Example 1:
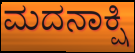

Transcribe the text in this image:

ಮದನಾಕ್ಷಿ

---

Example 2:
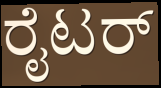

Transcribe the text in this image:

ರೈಟರ್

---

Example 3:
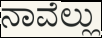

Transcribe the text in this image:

ನಾವೆಲ್ಲು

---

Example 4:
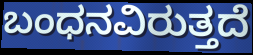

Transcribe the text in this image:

ಬಂಧನವಿರುತ್ತದೆ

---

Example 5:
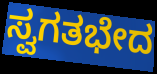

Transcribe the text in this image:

ಸ್ವಗತಭೇದ